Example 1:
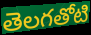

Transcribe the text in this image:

తెలగతోటి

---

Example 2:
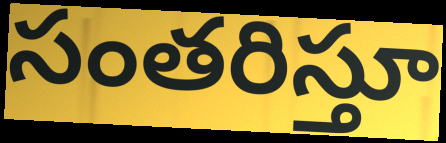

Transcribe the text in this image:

సంతరిస్తూ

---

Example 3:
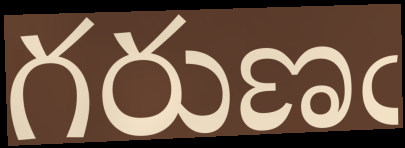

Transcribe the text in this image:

గరుణఁ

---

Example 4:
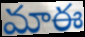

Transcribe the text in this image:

మాఈ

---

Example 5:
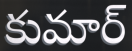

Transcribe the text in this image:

కుమార్